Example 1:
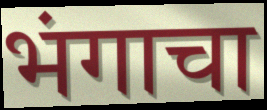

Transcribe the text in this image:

भंगाचा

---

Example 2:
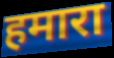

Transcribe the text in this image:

हमारा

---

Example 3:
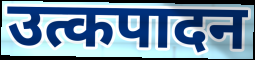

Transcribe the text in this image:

उत्कपादन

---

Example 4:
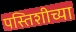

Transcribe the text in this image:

पस्तिशीच्या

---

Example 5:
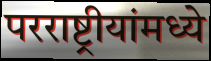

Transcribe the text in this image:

परराष्ट्रीयांमध्ये